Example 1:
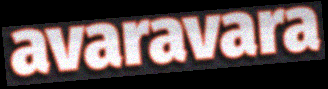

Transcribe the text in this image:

avaravara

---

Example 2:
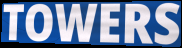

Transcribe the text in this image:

TOWERS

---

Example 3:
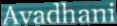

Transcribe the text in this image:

Avadhani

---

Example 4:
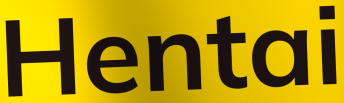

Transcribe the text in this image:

Hentai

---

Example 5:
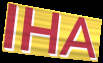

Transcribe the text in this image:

IHA